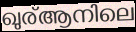
ഖുര്ആനിലെ